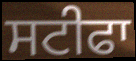
ਸਟੀਫਾ